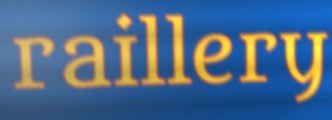
raillery